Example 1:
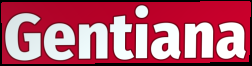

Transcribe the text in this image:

Gentiana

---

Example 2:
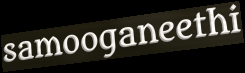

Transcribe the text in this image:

samooganeethi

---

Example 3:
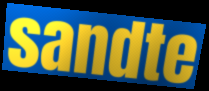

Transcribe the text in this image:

sandte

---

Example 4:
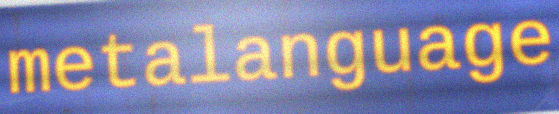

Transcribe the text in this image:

metalanguage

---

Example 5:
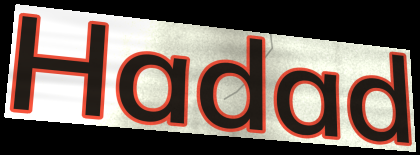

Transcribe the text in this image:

Hadad